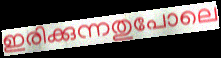
ഇരിക്കുന്നതുപോലെ